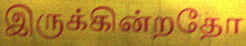
இருக்கின்றதோ